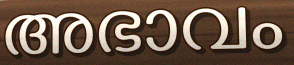
അഭാവം